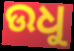
ଉଧୁ